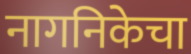
नागनिकेचा